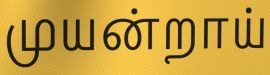
முயன்றாய்